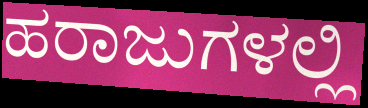
ಹರಾಜುಗಳಲ್ಲಿ